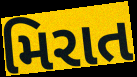
મિરાત